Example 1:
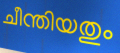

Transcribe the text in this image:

ചീന്തിയതും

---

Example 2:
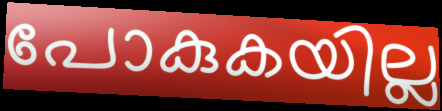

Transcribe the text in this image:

പോകുകയില്ല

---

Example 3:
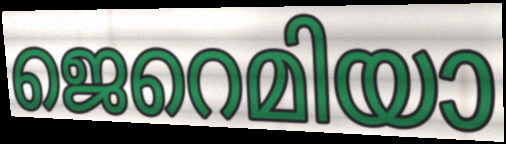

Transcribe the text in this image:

ജെറെമിയാ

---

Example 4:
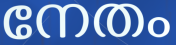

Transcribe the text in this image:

നേതം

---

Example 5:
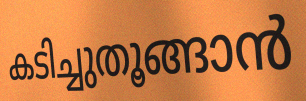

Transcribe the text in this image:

കടിച്ചുതൂങ്ങാൻ